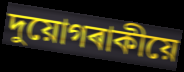
দুয়োগৰাকীয়ে